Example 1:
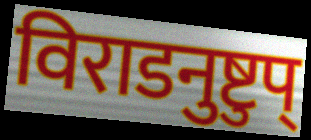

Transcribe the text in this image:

विराडनुष्टुप्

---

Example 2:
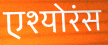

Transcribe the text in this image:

एश्योरंस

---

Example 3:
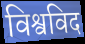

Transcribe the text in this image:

विश्वविद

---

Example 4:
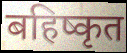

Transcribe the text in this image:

बहिष्कृत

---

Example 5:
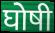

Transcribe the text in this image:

घोषी